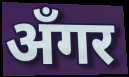
अँगर